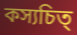
কস্যচিত্